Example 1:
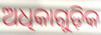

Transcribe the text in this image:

ଅଧିକାଗୁଡ଼ିକ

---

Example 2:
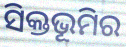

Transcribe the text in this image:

ସିକ୍ତଭୂମିର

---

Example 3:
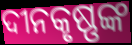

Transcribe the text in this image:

ଦୀନକୃଷ୍ଣଙ୍କ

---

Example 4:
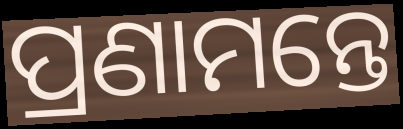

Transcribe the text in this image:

ପ୍ରଣାମନ୍ତେ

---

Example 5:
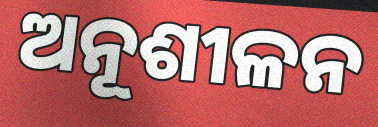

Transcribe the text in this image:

ଅନୂଶୀଳନ